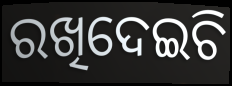
ରଖିଦେଇଚି